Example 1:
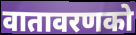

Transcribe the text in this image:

वातावरणको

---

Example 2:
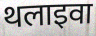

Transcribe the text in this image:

थलाइवा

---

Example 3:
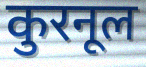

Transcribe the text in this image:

कुरनूल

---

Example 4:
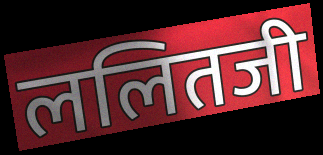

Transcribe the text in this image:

ललितजी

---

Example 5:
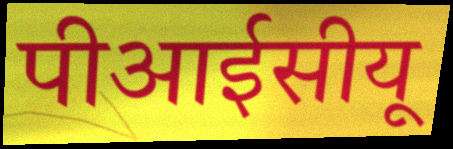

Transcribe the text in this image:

पीआईसीयू